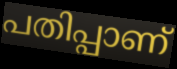
പതിപ്പാണ്